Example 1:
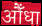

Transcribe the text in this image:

औँधा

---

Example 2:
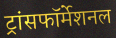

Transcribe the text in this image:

ट्रांसफॉर्मेशनल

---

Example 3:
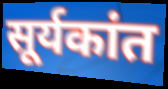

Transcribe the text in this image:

सूर्यकांत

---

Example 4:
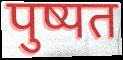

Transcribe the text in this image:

पुष्यत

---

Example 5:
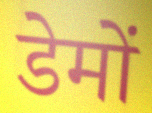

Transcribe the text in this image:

डेमों